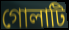
গোলাটি